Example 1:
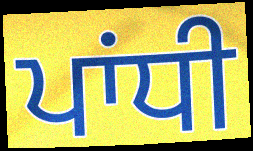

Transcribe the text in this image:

ਪਾਂਧੀ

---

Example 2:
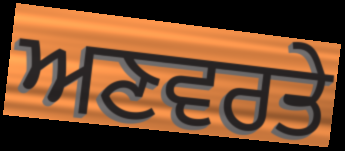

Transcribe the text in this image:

ਅਣਵਰਤੇ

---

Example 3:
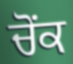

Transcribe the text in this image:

ਚੋਂਕ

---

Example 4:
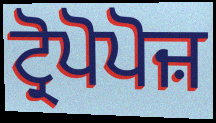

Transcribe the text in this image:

ਟ੍ਰੋਪੋਪੋਜ਼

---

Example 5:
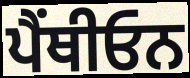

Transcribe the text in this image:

ਪੈਂਥੀਓਨ